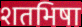
शतभिषा